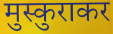
मुस्कुराकर